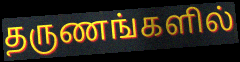
தருணங்களில்